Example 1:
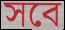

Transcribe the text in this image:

সবে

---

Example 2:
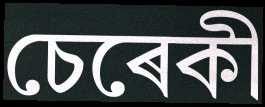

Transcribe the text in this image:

চেৰেকী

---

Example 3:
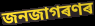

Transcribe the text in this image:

জনজাগৰণৰ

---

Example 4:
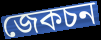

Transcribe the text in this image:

জেকচন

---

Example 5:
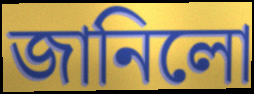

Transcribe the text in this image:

জানিলো